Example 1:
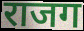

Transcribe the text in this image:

राजग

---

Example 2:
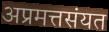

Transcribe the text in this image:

अप्रमत्तसंयत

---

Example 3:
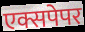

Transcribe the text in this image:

एक्सपेपर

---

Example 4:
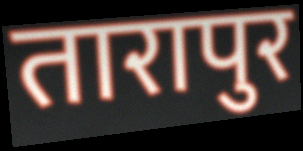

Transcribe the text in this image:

तारापुर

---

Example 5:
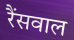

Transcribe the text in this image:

रैंसवाल